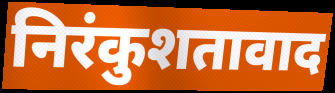
निरंकुशतावाद